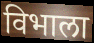
विभाला